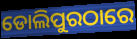
ଡୋଲିପୁରଠାରେ